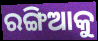
ରଙ୍ଗିଆକୁ